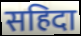
सहिदा